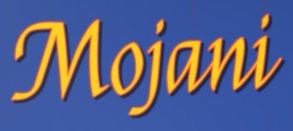
Mojani